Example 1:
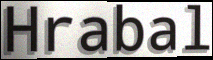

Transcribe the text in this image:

Hrabal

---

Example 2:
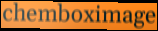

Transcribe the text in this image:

chemboximage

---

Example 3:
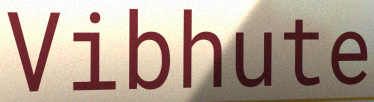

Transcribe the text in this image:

Vibhute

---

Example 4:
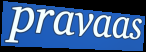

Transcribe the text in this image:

pravaas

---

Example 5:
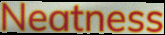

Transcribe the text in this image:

Neatness